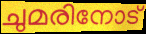
ചുമരിനോട്